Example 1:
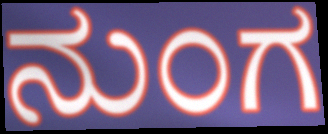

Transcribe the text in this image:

ನುಂಗ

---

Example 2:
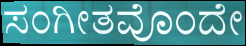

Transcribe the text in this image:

ಸಂಗೀತವೊಂದೇ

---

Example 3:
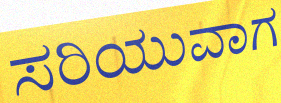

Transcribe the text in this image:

ಸರಿಯುವಾಗ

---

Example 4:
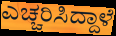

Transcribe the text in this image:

ಎಚ್ಚರಿಸಿದ್ದಾಳೆ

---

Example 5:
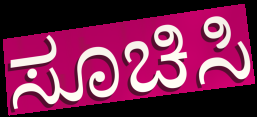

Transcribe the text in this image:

ಸೂಚಿಸಿ